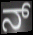
ನ್